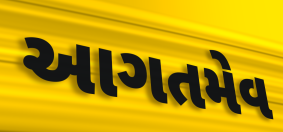
આગતમેવ